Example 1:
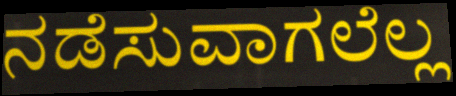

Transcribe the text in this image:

ನಡೆಸುವಾಗಲೆಲ್ಲ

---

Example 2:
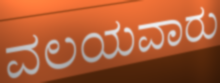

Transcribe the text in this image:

ವಲಯವಾರು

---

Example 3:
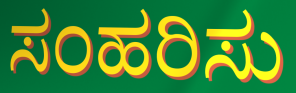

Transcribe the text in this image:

ಸಂಹರಿಸು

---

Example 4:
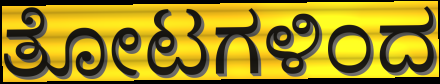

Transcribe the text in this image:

ತೋಟಗಳಿಂದ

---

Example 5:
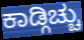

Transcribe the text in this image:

ಕಾಡ್ಗಿಚ್ಚು